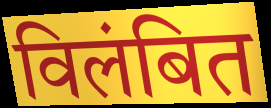
विलंबित